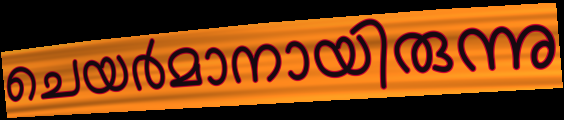
ചെയർമാനായിരുന്നു